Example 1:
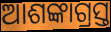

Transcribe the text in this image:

ଆଶଙ୍କାଗ୍ରସ୍ତ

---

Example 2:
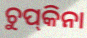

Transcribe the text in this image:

ଚୁପ୍‌କିନା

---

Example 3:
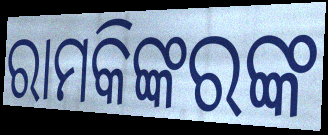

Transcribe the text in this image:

ରାମକିଙ୍କରଙ୍କ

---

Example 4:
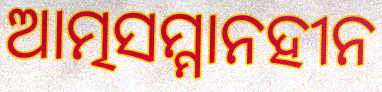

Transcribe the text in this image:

ଆତ୍ମସମ୍ମାନହୀନ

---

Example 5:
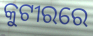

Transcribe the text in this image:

କୁଟୀରରେ